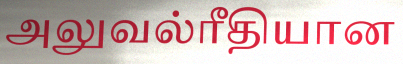
அலுவல்ரீதியான